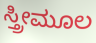
ಸ್ತ್ರೀಮೂಲ